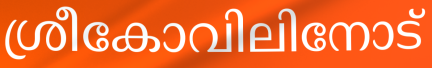
ശ്രീകോവിലിനോട്